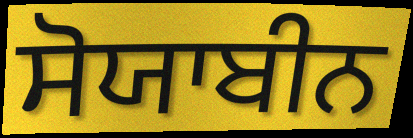
ਸੋਯਾਬੀਨ